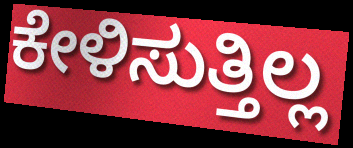
ಕೇಳಿಸುತ್ತಿಲ್ಲ